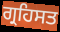
ਗ੍ਰਹਿਸਤ